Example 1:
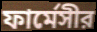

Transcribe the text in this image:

ফার্মেসীর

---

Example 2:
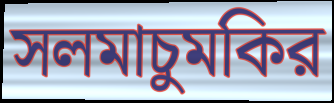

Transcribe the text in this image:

সলমাচুমকির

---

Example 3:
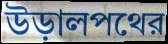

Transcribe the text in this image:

উড়ালপথের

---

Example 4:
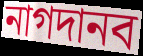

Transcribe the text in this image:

নাগদানব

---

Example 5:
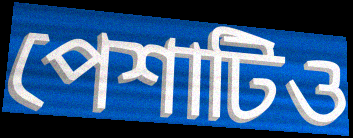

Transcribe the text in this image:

পেশাটিও